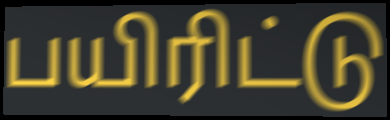
பயிரிட்டு